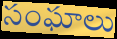
సంఘాలు